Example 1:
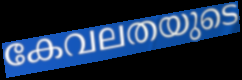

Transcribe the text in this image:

കേവലതയുടെ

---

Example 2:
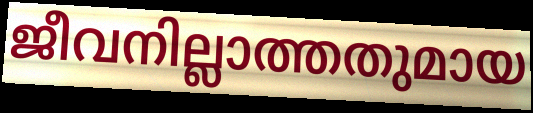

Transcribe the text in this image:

ജീവനില്ലാത്തതുമായ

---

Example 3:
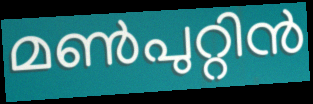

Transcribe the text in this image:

മൺപുറ്റിൻ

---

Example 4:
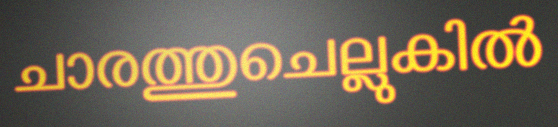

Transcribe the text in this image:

ചാരത്തുചെല്ലുകിൽ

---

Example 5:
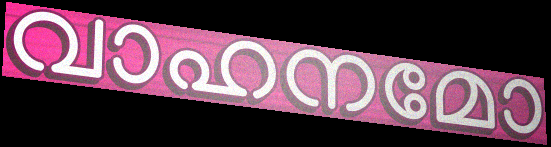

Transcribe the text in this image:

വാഹനമോ